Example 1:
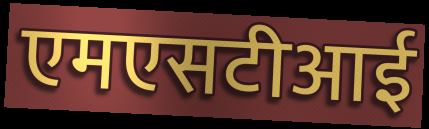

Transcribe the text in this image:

एमएसटीआई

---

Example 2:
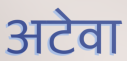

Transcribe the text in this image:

अटेवा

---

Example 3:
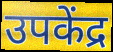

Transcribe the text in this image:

उपकेंद्र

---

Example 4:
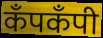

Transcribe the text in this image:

कँपकँपी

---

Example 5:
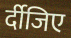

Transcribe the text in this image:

र्दीजिए